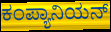
ಕಂಪ್ಯಾನಿಯನ್